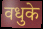
वधुके